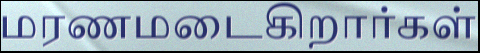
மரணமடைகிறார்கள்